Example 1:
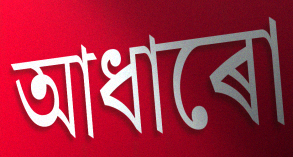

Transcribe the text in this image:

আধাৰো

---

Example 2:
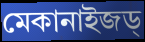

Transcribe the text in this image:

মেকানাইজড্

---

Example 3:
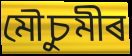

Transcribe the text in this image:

মৌচুমীৰ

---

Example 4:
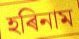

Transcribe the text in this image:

হৰিনাম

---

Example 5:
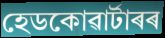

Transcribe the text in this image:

হেডকোৱাৰ্টাৰৰ